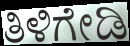
ತಿಳಿಗೇಡಿ